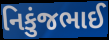
નિકુંજભાઈ